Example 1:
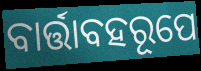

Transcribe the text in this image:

ବାର୍ତ୍ତାବହରୂପେ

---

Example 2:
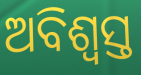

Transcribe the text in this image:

ଅବିଶ୍ୱସ୍ତ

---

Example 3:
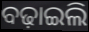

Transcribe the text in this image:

ବଢ଼ାଇଲି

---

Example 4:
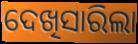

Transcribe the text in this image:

ଦେଖିସାରିଲା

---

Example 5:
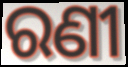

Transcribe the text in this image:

ରଣୀ